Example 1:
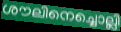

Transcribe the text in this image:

ശൗലിനെച്ചൊല്ലി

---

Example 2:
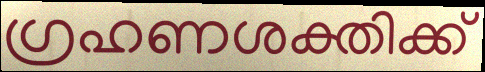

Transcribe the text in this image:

ഗ്രഹണശക്തിക്ക്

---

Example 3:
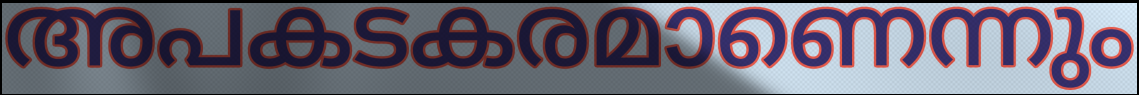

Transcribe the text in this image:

അപകടകരമാണെന്നും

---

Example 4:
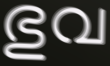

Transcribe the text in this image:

ഭുവ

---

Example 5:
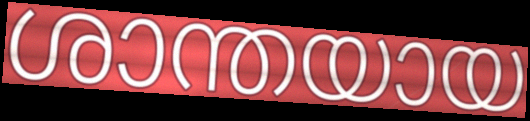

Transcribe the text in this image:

ശാന്തയായ